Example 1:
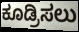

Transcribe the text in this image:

ಕೂಡ್ರಿಸಲು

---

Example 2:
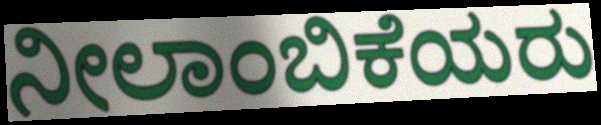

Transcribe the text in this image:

ನೀಲಾಂಬಿಕೆಯರು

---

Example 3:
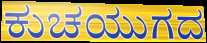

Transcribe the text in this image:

ಕುಚಯುಗದ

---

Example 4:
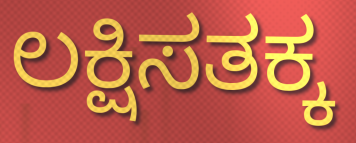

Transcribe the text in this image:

ಲಕ್ಷಿಸತಕ್ಕ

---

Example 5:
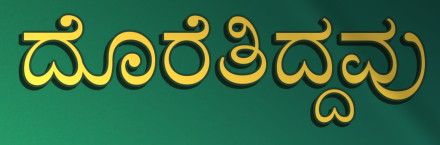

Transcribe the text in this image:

ದೊರೆತಿದ್ದವು